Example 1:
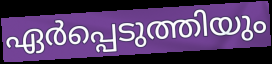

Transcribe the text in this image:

ഏർപ്പെടുത്തിയും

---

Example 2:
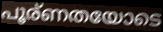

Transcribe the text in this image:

പൂര്ണതയോടെ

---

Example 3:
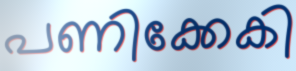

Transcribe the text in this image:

പണിക്കേകി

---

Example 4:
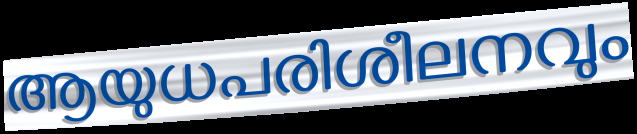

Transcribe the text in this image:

ആയുധപരിശീലനവും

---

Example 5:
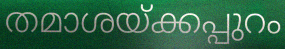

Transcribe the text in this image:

തമാശയ്ക്കപ്പുറം